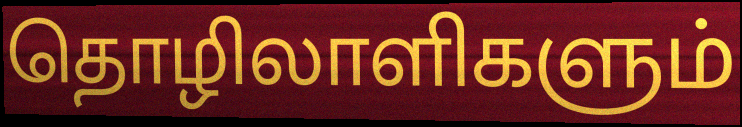
தொழிலாளிகளும்